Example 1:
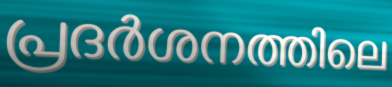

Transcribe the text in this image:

പ്രദർശനത്തിലെ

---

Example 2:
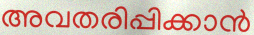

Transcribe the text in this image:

അവതരിപ്പിക്കാൻ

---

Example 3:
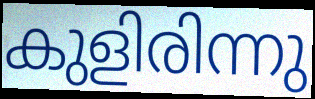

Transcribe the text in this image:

കുളിരിന്നു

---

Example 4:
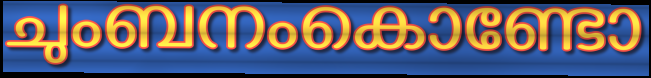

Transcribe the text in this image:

ചുംബനംകൊണ്ടോ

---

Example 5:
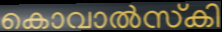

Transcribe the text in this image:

കൊവാൽസ്‌കി